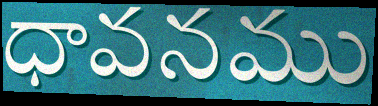
ధావనము